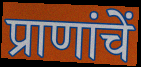
प्राणांचें